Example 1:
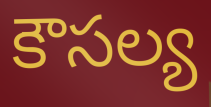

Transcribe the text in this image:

కౌసల్య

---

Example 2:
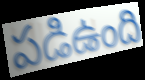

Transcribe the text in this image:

పడిఉంది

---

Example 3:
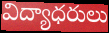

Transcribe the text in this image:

విద్యాధరులు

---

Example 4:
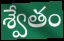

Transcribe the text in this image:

శ్వేతం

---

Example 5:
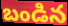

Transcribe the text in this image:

బండిన